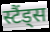
स्टैंड्स